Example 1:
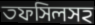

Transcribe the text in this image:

তফসিলসহ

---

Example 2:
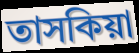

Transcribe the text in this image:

তাসকিয়া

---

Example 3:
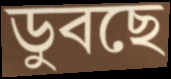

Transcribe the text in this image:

ডুবছে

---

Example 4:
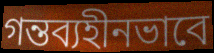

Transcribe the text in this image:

গন্তব্যহীনভাবে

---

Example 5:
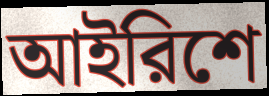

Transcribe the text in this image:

আইরিশে